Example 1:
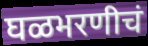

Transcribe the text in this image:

घळभरणीचं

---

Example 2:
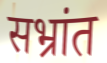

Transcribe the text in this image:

सभ्रांत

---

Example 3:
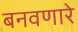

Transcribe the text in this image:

बनवणारे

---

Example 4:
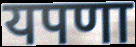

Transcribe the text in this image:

यपणा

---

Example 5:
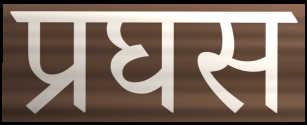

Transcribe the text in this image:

प्रघस